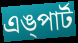
এঙ্পার্ট